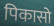
पिकासो